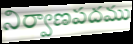
నిర్వాణపదము